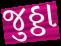
જુઠ્ઠા